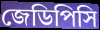
জেডিপিসি